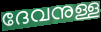
ദേവനുള്ള